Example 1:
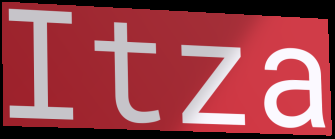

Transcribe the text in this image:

Itza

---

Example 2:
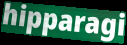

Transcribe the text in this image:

hipparagi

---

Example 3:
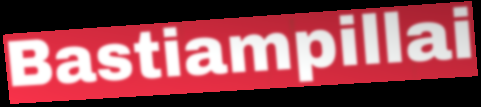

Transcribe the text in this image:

Bastiampillai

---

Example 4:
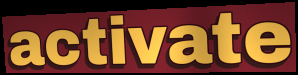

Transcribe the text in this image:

activate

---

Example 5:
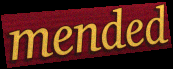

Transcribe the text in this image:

mended